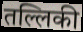
तल्लिकी